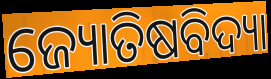
ଜ୍ୟୋତିଷବିଦ୍ୟା